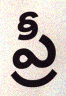
ప్రీ